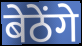
बेठेंगे